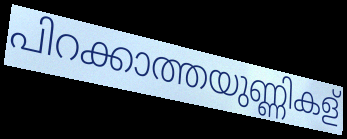
പിറക്കാത്തയുണ്ണികള്